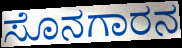
ಸೊನಗಾರನ